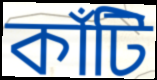
কাঁটি